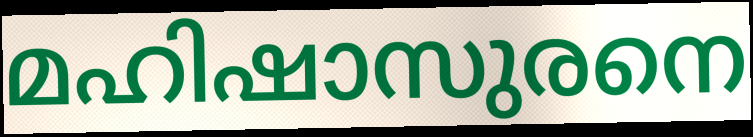
മഹിഷാസുരനെ